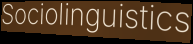
Sociolinguistics